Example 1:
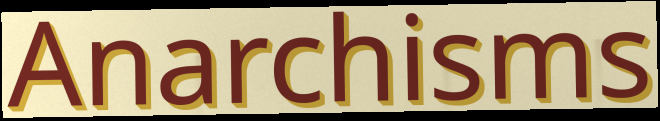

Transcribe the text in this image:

Anarchisms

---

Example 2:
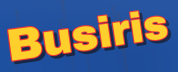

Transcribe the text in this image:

Busiris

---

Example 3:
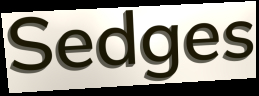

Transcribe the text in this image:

Sedges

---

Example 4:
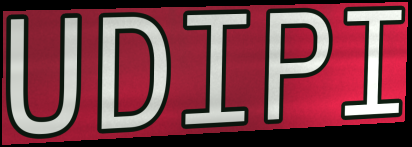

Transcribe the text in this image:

UDIPI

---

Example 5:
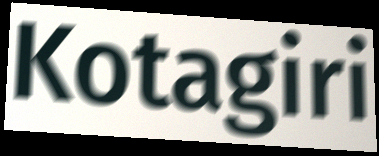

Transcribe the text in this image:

Kotagiri